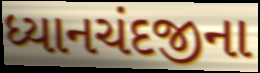
ધ્યાનચંદજીના